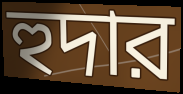
হুদার